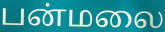
பன்மலை